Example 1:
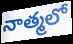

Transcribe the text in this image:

నాత్మలో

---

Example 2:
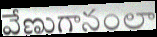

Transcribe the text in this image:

వేణుగానంలా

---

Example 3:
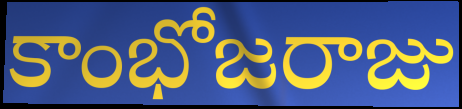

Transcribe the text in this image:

కాంభోజరాజు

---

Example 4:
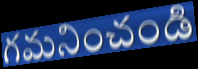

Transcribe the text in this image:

గమనించండి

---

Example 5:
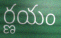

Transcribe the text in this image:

ర్ణయం